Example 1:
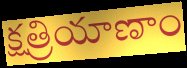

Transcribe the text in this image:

క్షత్రియాణాం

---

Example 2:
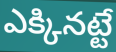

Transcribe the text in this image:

ఎక్కినట్టే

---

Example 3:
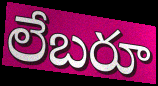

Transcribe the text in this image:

లేబరూ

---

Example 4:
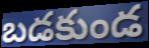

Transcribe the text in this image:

బడకుండ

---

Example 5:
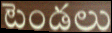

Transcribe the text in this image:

టెండలు